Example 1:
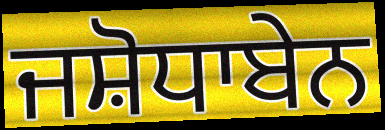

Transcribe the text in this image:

ਜਸ਼ੋਧਾਬੇਨ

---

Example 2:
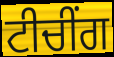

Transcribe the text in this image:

ਟੀਚੀਂਗ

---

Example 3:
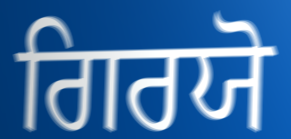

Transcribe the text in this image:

ਗਿਰਯੋ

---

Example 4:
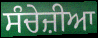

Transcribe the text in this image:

ਸੰਚੇਜ਼ੀਆ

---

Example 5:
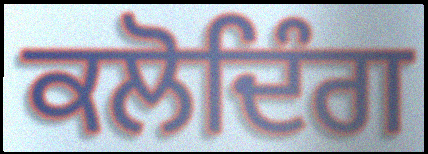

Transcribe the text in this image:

ਕਲੋਦਿੰਗ